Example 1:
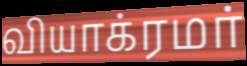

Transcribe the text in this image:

வியாக்ரமர்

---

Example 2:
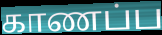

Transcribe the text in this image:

காணப்ப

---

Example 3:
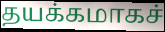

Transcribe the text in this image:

தயக்கமாகச்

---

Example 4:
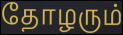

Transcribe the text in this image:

தோழரும்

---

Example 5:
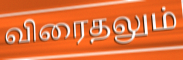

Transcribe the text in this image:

விரைதலும்